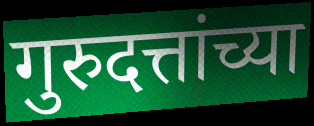
गुरुदत्तांच्या